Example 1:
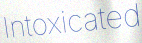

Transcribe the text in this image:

Intoxicated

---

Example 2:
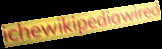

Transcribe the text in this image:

ichewikipediawired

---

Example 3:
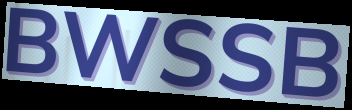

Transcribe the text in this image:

BWSSB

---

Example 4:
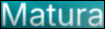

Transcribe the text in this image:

Matura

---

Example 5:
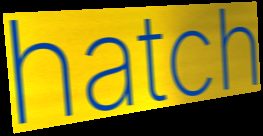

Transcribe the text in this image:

hatch